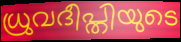
ധ്രുവദീപ്തിയുടെ